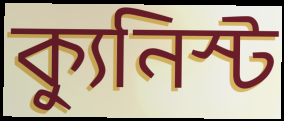
ক্যুনিস্ট